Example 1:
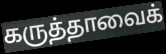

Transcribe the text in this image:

கருத்தாவைக்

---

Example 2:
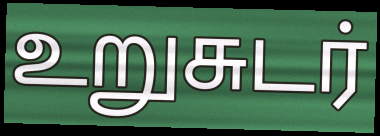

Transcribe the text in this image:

உறுசுடர்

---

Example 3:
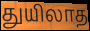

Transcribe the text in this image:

துயிலாத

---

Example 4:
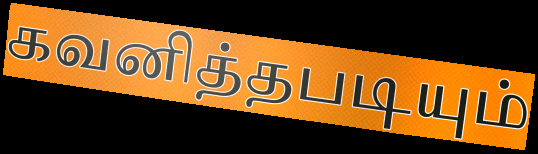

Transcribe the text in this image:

கவனித்தபடியும்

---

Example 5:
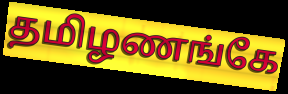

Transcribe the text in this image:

தமிழணங்கே